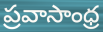
ప్రవాసాంధ్ర